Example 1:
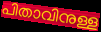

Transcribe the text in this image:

പിതാവിനുള്ള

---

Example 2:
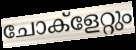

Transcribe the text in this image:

ചോക്ളേറ്റും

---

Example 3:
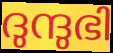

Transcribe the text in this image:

ദുന്ദുഭി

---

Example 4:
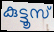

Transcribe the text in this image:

കുട്ടൂസ്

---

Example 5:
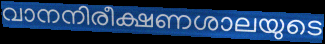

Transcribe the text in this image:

വാനനിരീക്ഷണശാലയുടെ